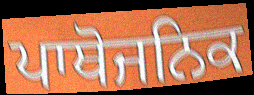
ਪਾਥੋਜਨਿਕ